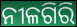
ନୀଳଗିରି